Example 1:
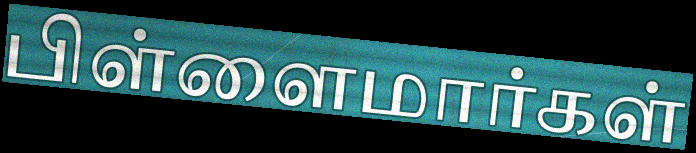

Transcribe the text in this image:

பிள்ளைமார்கள்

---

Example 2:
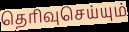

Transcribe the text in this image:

தெரிவுசெய்யும்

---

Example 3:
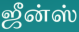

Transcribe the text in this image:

ஜீன்ஸ்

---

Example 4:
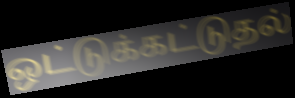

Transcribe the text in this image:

ஒட்டுக்கட்டுதல்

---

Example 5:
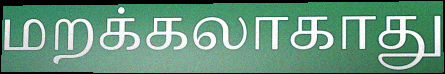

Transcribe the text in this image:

மறக்கலாகாது